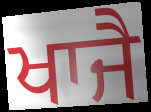
ਖਾਜੈ